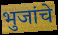
भुजांचे